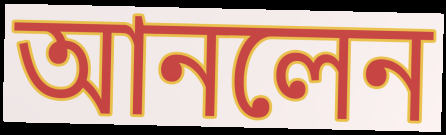
আনলেন